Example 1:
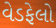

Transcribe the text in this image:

વેડફેલો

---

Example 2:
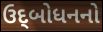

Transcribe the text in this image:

ઉદ્‌બોધનનો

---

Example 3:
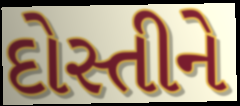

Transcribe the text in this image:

દોસ્તીને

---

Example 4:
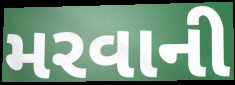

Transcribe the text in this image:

મરવાની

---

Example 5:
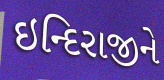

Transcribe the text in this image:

ઇન્દિરાજીને